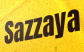
Sazzaya